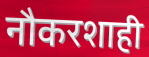
नौकरशाही